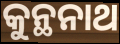
କୁନ୍ଥନାଥ